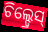
ଚିଲ୍ଡ୍ରେସ୍